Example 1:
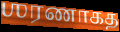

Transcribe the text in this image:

ஶரணாகத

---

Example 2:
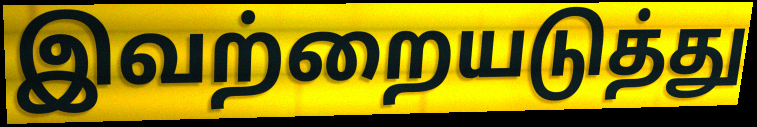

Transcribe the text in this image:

இவற்றையடுத்து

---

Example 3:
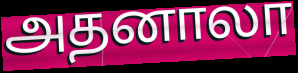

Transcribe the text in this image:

அதனாலா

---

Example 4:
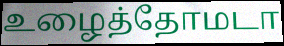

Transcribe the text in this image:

உழைத்தோமடா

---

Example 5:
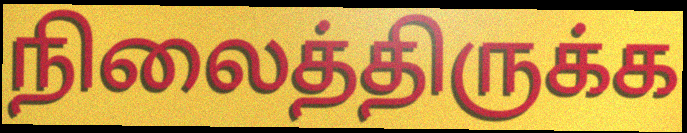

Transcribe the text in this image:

நிலைத்திருக்க